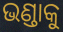
ଭଣ୍ଡାକୁ